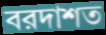
বরদাশত